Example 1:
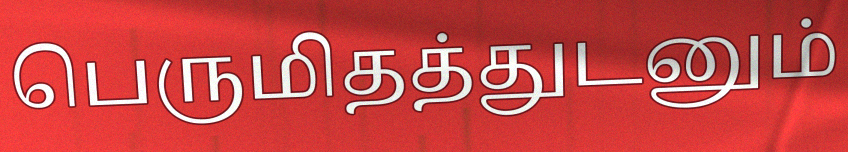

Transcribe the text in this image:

பெருமிதத்துடனும்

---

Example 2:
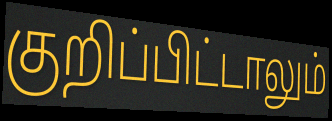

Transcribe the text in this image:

குறிப்பிட்டாலும்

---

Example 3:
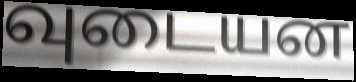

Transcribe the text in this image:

வுடையன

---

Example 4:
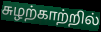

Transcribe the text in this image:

சுழற்காற்றில்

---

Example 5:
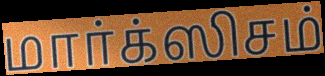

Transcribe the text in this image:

மார்க்ஸிசம்